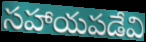
సహాయపడేవి